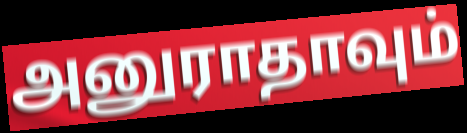
அனுராதாவும்